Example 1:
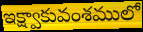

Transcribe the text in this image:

ఇక్ష్వాకువంశములో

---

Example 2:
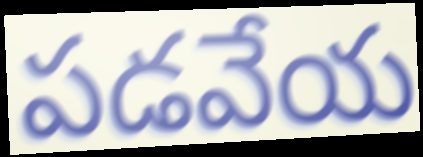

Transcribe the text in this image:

పడవేయ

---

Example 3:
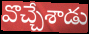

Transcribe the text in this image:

వొచ్చేశాడు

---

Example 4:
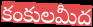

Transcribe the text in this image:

కంకులమీద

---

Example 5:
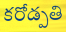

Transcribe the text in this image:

కరోడ్పతి